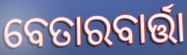
ବେତାରବାର୍ତ୍ତା